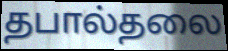
தபால்தலை